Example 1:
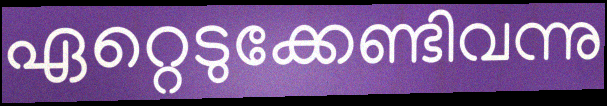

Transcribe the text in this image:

ഏറ്റെടുക്കേണ്ടിവന്നു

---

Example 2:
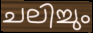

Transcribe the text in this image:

ചലിച്ചും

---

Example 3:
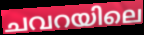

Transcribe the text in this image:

ചവറയിലെ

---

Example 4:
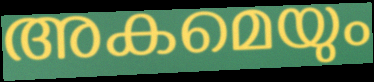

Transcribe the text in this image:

അകമെയും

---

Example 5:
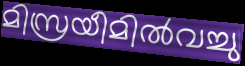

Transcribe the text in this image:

മിസ്രയീമിൽവച്ചു